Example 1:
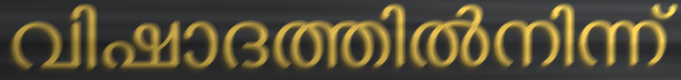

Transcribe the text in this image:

വിഷാദത്തിൽനിന്ന്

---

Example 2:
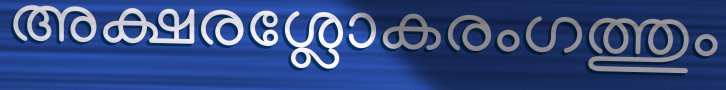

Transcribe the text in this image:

അക്ഷരശ്ലോകരംഗത്തും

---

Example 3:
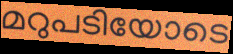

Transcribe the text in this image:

മറുപടിയോടെ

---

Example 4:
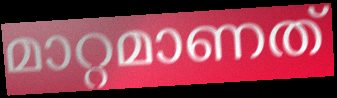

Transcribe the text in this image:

മാറ്റമാണത്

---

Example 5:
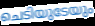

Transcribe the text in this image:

ചെടിയുടേയും